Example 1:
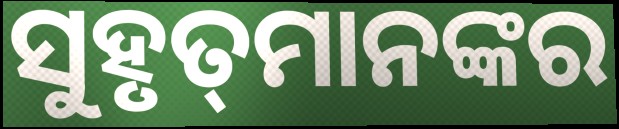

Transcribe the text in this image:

ସୁହୃତ୍‌ମାନଙ୍କର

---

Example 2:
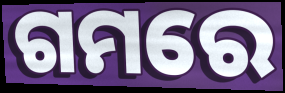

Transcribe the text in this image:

ଗମରେ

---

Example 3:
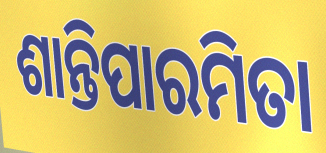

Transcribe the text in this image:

ଶାନ୍ତିପାରମିତା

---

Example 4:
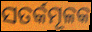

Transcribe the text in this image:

ସତର୍କମୂଳକ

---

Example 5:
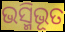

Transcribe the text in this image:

ଭସ୍ମିଭୂତ